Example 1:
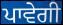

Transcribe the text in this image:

ਪਾਵੇਗੀ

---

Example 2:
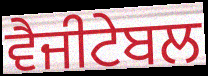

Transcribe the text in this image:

ਵੈਜੀਟੇਬਲ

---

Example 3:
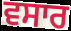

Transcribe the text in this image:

ਵਸਾਰ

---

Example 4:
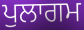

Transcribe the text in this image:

ਪੁਲਾਗਮ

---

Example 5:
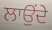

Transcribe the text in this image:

ਲਾਉਂਦੇ